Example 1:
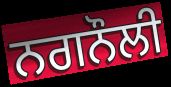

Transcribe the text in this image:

ਨਗਨੌਲੀ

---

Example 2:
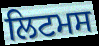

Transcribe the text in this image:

ਲਿਟਮਸ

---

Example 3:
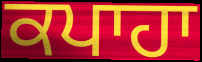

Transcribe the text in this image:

ਕਪਾਹਾ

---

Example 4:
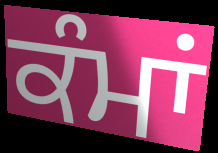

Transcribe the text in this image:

ਕੰਮਾਂ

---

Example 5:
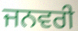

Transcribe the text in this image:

ਜਨਵਰੀ